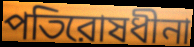
পতিরোষধীনা